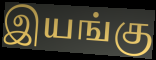
இயங்கு